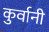
कुर्वानी